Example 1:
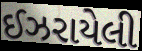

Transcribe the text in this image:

ઈઝરાયેલી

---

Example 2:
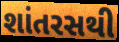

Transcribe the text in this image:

શાંતરસથી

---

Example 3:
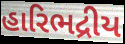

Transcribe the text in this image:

હારિભદ્રીય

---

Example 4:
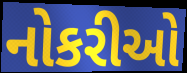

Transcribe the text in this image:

નોકરીઓ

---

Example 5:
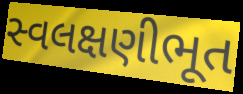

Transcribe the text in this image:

સ્વલક્ષણીભૂત